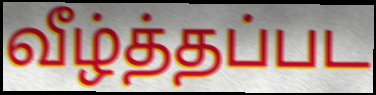
வீழ்த்தப்பட